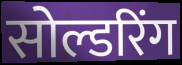
सोल्डरिंग